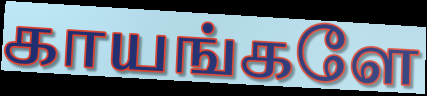
காயங்களே